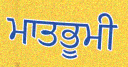
ਮਾਤਭੂਮੀ